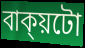
বাক্য়টো